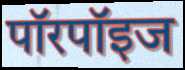
पॉरपॉइज